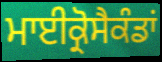
ਮਾਈਕ੍ਰੋਸੈਕੰਡਾਂ